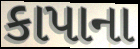
કાપાના